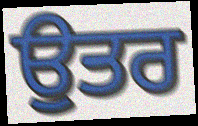
ਉੁਤਰ